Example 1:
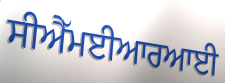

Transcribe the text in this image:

ਸੀਐੱਮਈਆਰਆਈ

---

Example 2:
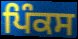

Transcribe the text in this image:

ਪਿੰਕਸ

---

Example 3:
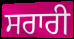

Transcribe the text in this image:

ਸਰਾਰੀ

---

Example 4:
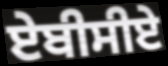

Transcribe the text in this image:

ਏਬੀਸੀਏ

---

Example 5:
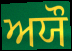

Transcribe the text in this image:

ਅਯੌ